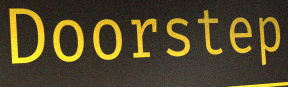
Doorstep